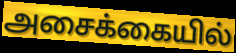
அசைக்கையில்